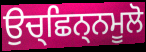
ਉਚ੍ਛਿਨ੍ਨਮੂਲੋ